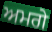
ਅਮਗੇ